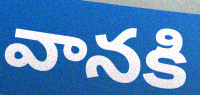
వానకి